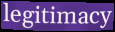
legitimacy